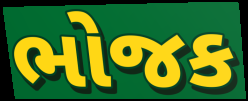
ભોજક